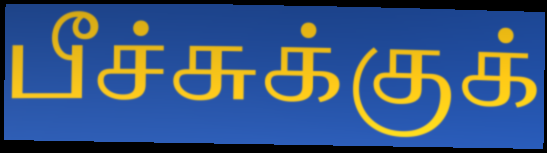
பீச்சுக்குக்